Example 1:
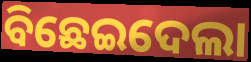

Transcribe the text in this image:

ବିଛେଇଦେଲା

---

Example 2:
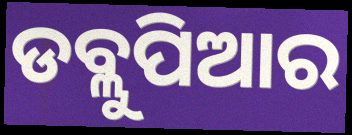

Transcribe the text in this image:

ଡବ୍ଲୁପିଆର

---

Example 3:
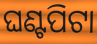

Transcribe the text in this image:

ଘଣ୍ଟପିଟା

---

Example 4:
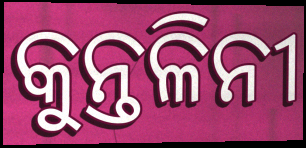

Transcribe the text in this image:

କୁନ୍ତଳିନୀ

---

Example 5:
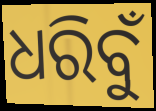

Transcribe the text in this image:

ଧରିବୁଁ